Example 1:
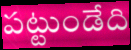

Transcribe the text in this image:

పట్టుండేది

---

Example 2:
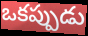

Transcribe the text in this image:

ఒకప్పుడు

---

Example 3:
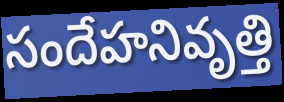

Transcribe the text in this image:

సందేహనివృత్తి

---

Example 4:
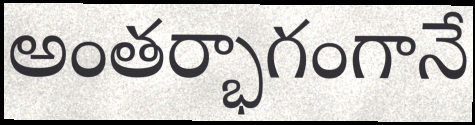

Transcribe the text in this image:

అంతర్భాగంగానే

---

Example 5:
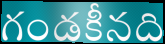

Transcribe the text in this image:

గండకీనది